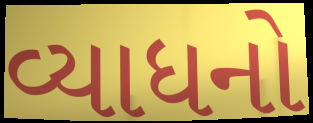
વ્યાધનો